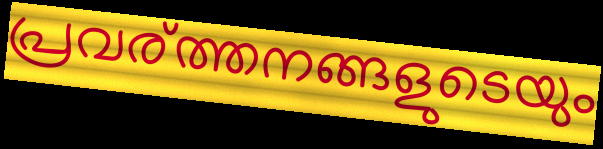
പ്രവര്ത്തനങ്ങളുടെയും